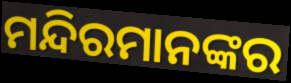
ମନ୍ଦିରମାନଙ୍କର